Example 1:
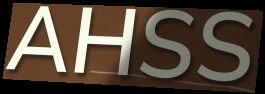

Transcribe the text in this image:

AHSS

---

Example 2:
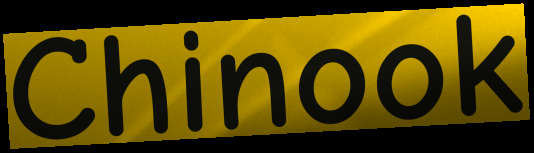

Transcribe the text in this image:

Chinook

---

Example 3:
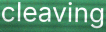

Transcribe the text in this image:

cleaving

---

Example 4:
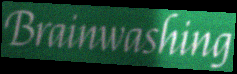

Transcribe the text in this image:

Brainwashing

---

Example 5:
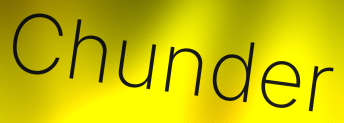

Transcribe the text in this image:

Chunder